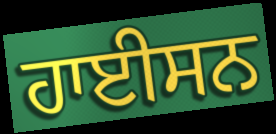
ਹਾਈਸਨ